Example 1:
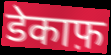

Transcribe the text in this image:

डेकाफ़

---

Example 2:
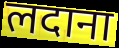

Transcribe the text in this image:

लदाना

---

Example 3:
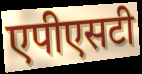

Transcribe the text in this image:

एपीएसटी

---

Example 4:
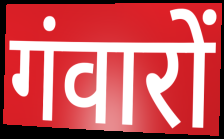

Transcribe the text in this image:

गंवारों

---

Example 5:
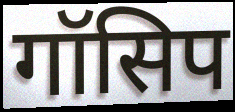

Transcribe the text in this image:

गॉसिप